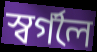
স্বৰ্গলৈ